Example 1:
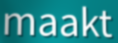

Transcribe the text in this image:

maakt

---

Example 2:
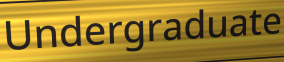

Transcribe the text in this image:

Undergraduate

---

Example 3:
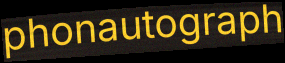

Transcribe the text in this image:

phonautograph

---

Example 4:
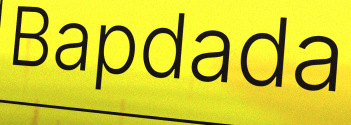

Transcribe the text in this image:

Bapdada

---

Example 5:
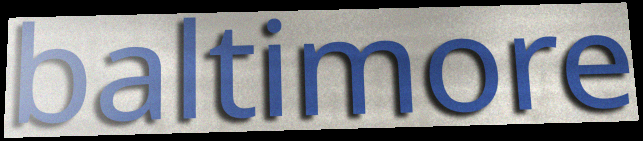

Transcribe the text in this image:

baltimore